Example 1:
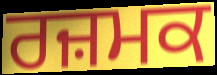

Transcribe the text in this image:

ਰਜ਼ਮਕ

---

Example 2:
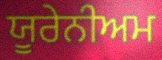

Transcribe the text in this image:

ਯੂਰੇਨੀਅਮ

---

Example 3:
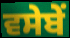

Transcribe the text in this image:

ਵਸੇਬੇਂ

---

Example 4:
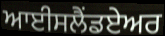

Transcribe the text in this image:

ਆਈਸਲੈਂਡਏਅਰ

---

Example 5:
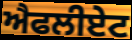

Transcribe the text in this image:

ਐਫਲੀਏਟ